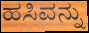
ಹಸಿವನ್ನು